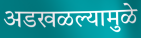
अडखळल्यामुळे